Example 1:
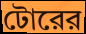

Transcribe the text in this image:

টোরের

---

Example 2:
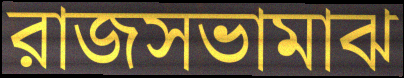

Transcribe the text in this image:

রাজসভামাঝ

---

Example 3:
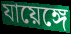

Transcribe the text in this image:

যায়েঙ্গে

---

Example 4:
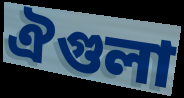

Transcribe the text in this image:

ঐগুলা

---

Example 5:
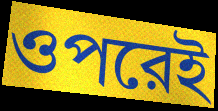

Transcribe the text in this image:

ওপরেই